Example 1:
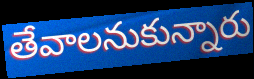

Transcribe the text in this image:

తేవాలనుకున్నారు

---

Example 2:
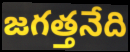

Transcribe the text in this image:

జగత్తనేది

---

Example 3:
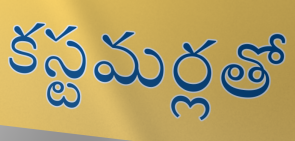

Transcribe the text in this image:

కస్టమర్లతో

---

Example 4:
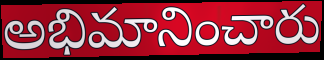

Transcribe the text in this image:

అభిమానించారు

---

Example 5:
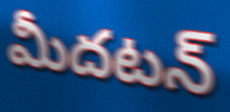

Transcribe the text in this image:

మీదటన్